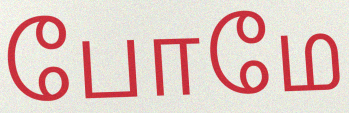
போமே